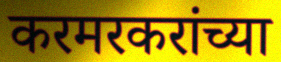
करमरकरांच्या